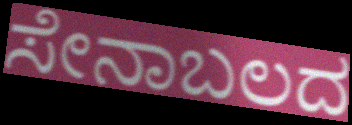
ಸೇನಾಬಲದ